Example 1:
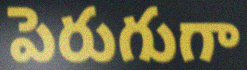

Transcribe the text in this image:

పెరుగుగా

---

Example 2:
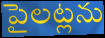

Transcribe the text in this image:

పైలట్లను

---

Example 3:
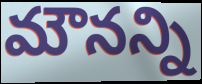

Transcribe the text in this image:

మౌనన్ని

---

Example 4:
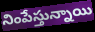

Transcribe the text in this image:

నింపేస్తున్నాయి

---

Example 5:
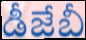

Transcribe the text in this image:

డీజేబీ